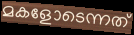
മകളോടെന്നത്